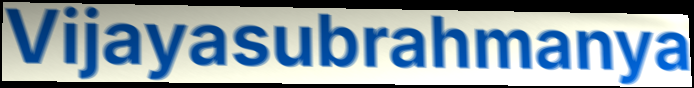
Vijayasubrahmanya